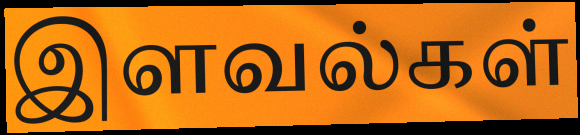
இளவல்கள்